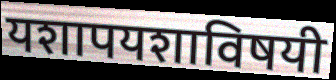
यशापयशाविषयी